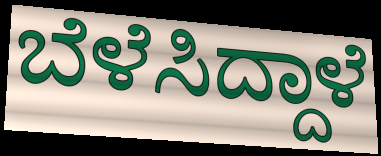
ಬೆಳೆಸಿದ್ದಾಳೆ